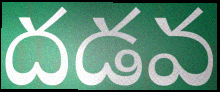
దడవ